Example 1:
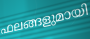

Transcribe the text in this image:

ഫലങ്ങളുമായി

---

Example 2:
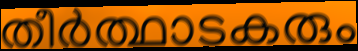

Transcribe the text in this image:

തീർത്ഥാടകരും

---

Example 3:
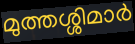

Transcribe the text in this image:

മുത്തശ്ശിമാർ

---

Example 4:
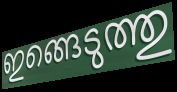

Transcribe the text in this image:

ഇങ്ങെടുത്തു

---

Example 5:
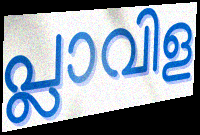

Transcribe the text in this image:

പ്ലാവിള